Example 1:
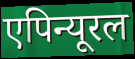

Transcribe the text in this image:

एपिन्यूरल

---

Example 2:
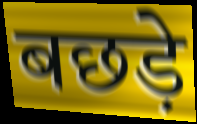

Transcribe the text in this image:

बछड़े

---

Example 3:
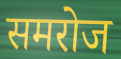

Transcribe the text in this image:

समरोज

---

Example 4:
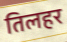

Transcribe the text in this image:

तिलहर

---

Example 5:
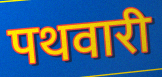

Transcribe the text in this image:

पथवारी